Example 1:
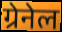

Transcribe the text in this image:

ग्रेनेल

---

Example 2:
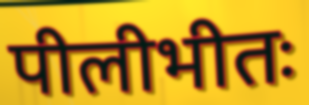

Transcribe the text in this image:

पीलीभीतः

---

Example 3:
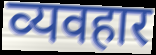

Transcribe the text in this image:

व्‍यवहार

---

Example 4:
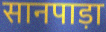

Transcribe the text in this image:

सानपाड़ा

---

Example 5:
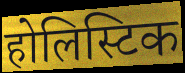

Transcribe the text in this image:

होलिस्टिक